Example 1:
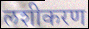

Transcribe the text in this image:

लशीकरण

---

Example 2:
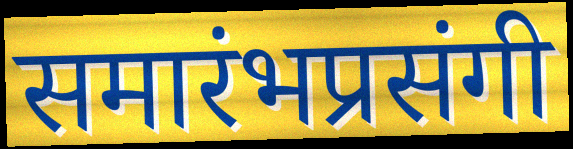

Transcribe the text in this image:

समारंभप्रसंगी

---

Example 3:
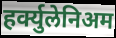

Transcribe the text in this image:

हर्क्युलेनिअम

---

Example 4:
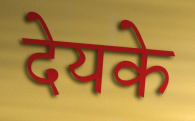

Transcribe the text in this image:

देयके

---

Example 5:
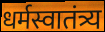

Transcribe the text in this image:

धर्मस्वातंत्र्य